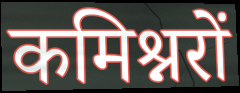
कमिश्नरों